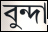
বুন্দা